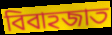
বিবাহজাত